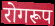
रोगरूप